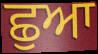
ਛੁਆ